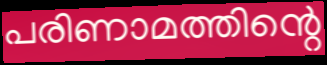
പരിണാമത്തിന്റെ